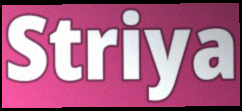
Striya